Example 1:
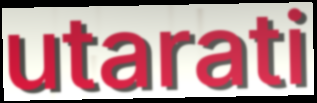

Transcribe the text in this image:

utarati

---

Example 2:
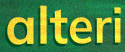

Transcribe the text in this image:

alteri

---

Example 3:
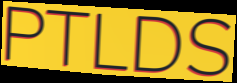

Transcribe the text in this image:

PTLDS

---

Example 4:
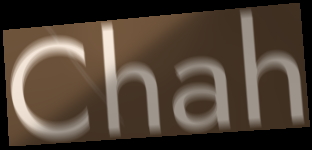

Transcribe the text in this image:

Chah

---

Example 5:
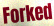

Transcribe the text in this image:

Forked